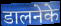
डालनेके